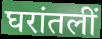
घरांतलीं